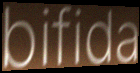
bifida